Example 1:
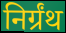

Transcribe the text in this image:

निर्ग्रंथ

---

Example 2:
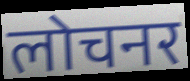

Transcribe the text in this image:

लोचनर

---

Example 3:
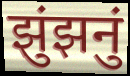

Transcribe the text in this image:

झुंझनुं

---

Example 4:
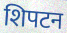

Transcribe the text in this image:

शिपटन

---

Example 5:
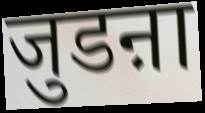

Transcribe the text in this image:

जुडऩा